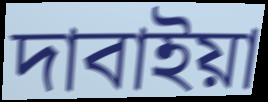
দাবাইয়া